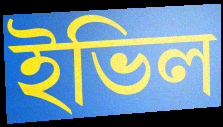
ইভিল